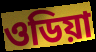
ওডিয়া